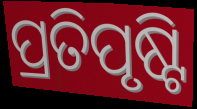
ପ୍ରତିପୃଷ୍ଟି